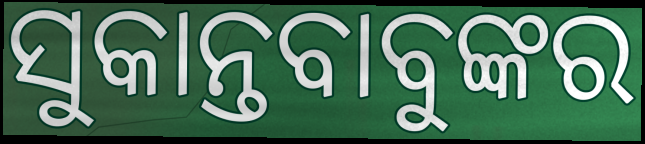
ସୁକାନ୍ତବାବୁଙ୍କର